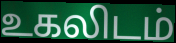
உகலிடம்